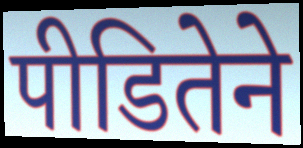
पीडितेने